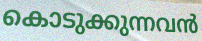
കൊടുക്കുന്നവൻ